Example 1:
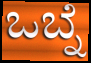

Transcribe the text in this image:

ಒಬ್ನೆ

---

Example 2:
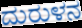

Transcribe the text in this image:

ದುರುಳನ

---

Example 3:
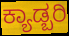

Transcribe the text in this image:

ಕ್ಯಾಡ್ಬರಿ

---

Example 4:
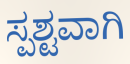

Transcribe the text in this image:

ಸ್ಪಶ್ಟವಾಗಿ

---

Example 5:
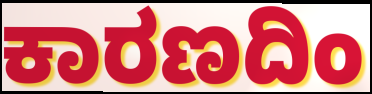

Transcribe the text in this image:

ಕಾರಣದಿಂ